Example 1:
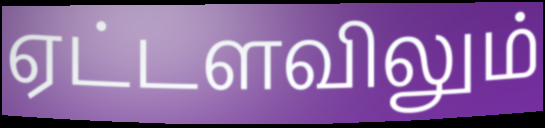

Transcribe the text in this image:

ஏட்டளவிலும்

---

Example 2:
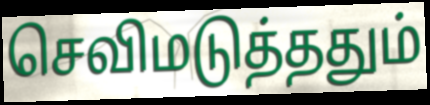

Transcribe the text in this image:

செவிமடுத்ததும்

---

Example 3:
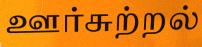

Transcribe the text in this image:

ஊர்சுற்றல்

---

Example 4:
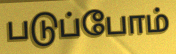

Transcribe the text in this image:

படுப்போம்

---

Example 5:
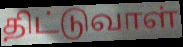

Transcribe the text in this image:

திட்டுவாள்